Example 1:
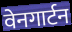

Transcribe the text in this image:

वेनगार्टन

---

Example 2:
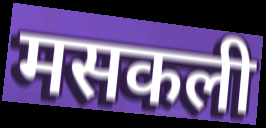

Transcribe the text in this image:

मसकली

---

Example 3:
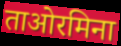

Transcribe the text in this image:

ताओरमिना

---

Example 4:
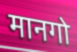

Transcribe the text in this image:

मानगो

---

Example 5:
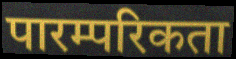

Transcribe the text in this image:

पारम्परिकता